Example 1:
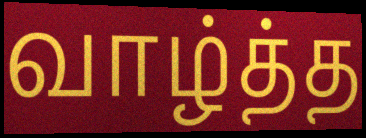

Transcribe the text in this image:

வாழ்த்த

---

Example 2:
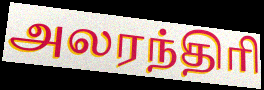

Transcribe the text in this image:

அலரந்திரி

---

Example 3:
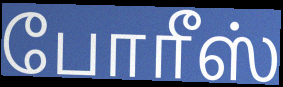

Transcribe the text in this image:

போரீஸ்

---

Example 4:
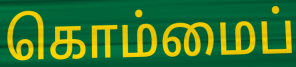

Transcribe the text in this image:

கொம்மைப்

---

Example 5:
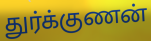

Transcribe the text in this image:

துர்க்குணன்